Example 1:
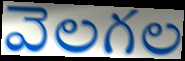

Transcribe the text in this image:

వెలగల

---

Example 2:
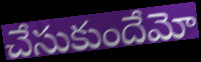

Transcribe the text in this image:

చేసుకుందేమో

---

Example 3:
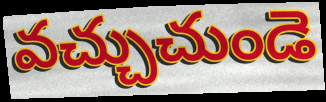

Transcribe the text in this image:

వచ్చుచుండె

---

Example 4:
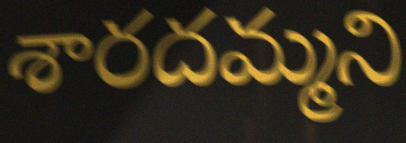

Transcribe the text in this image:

శారదమ్మని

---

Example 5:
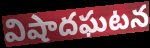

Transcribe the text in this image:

విషాదఘటన